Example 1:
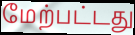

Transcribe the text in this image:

மேற்பட்டது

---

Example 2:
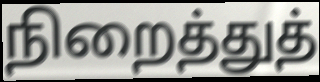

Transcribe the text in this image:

நிறைத்துத்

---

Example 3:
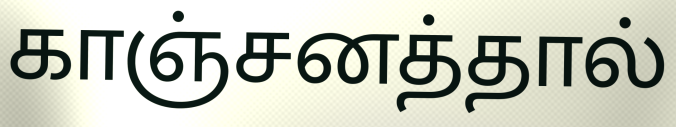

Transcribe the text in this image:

காஞ்சனத்தால்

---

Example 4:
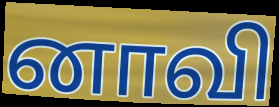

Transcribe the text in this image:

னாவி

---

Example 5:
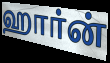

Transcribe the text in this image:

ஹார்ன்